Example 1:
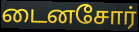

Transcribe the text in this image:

டைனசோர்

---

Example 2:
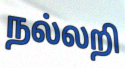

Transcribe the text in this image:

நல்லறி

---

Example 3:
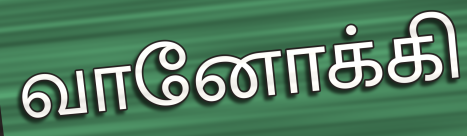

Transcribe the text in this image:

வானோக்கி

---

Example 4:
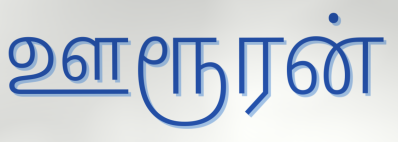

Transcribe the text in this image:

ஊரூரன்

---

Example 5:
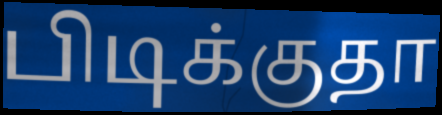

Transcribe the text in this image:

பிடிக்குதா